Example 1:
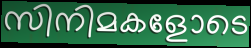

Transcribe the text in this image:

സിനിമകളോടെ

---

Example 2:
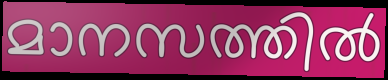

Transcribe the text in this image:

മാനസത്തിൽ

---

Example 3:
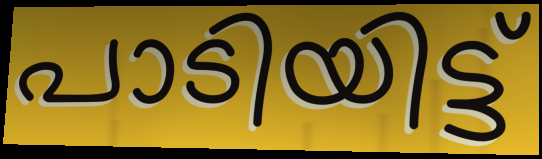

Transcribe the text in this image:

പാടിയിട്ട്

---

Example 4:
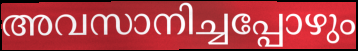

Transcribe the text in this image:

അവസാനിച്ചപ്പോഴും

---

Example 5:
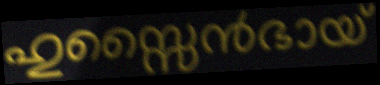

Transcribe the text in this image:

ഹുസ്സൈൻഭായ്